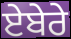
ਏਬੇਰੇ